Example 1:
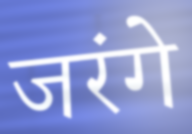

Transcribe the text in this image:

जरंगे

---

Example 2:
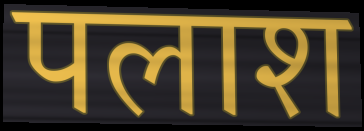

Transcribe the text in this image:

पलाश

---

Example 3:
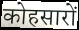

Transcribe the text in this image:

कोहसारों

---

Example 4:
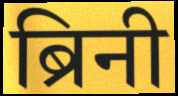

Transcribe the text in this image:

ब्रिनी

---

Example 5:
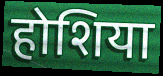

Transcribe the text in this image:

होशिया